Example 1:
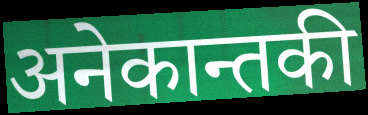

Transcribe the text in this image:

अनेकान्तकी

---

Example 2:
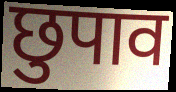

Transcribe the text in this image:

छुपाव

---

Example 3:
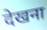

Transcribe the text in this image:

देखना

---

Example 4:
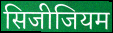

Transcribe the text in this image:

सिजीजियम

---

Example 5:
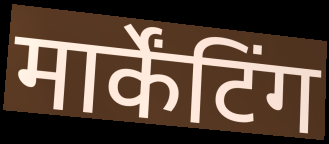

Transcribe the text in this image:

मार्केंटिंग